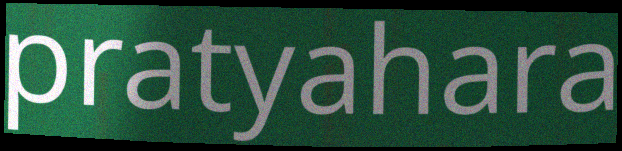
pratyahara